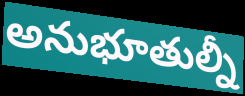
అనుభూతుల్నీ